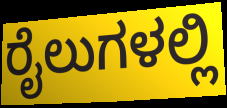
ರೈಲುಗಳಲ್ಲಿ